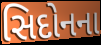
સિદોનના